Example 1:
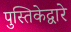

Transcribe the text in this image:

पुस्तिकेद्वारे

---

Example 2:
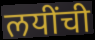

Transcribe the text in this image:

लयींची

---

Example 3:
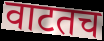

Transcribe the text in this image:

वाटतच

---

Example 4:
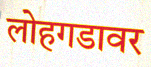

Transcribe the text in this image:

लोहगडावर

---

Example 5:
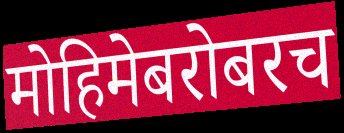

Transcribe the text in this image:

मोहिमेबरोबरच